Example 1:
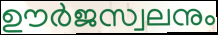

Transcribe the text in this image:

ഊർജസ്വലനും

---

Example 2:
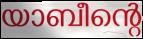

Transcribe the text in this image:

യാബീന്റെ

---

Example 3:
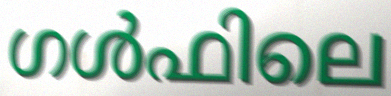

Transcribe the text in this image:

ഗൾഫിലെ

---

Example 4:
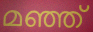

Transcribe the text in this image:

മഞ്ഞ്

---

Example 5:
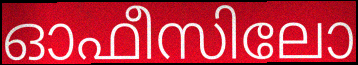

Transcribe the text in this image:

ഓഫീസിലോ